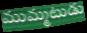
ముమ్మటుడు